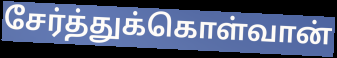
சேர்த்துக்கொள்வான்